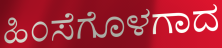
ಹಿಂಸೆಗೊಳಗಾದ